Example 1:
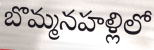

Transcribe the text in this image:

బొమ్మనహళ్లిలో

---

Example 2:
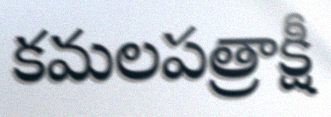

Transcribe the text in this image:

కమలపత్రాక్షీ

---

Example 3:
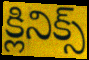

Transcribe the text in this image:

క్లినిక్స్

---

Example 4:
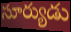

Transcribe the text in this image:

సూర్యుడు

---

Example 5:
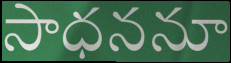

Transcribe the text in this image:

సాధననూ